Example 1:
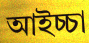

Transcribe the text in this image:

আইচ্চা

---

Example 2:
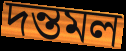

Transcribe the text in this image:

দন্তমল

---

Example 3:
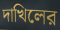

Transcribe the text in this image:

দাখিলের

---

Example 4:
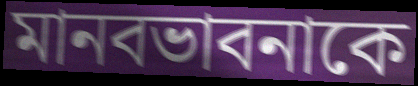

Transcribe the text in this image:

মানবভাবনাকে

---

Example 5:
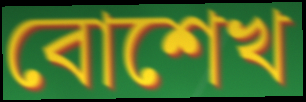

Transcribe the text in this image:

বোশেখ